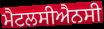
ਮੈਟਲਸੀਐਨਸੀ